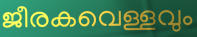
ജീരകവെള്ളവും